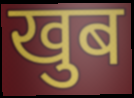
खुब